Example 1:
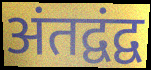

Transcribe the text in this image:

अंतद्वंद्व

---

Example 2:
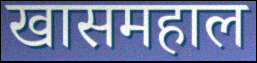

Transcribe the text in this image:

खासमहाल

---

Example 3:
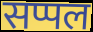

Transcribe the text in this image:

सप्पल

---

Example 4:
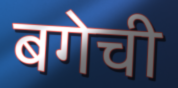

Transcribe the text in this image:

बगेची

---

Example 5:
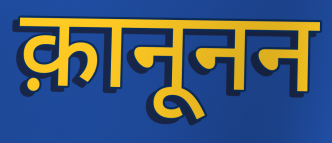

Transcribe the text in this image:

क़ानूनन